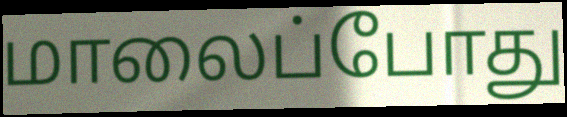
மாலைப்போது